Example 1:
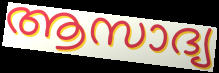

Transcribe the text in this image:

ആസാദ്യ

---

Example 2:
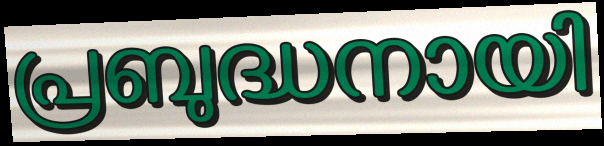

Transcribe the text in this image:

പ്രബുദ്ധനായി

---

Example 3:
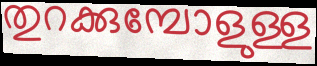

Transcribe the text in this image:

തുറക്കുമ്പോളുള്ള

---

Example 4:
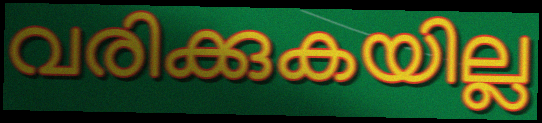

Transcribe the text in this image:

വരിക്കുകയില്ല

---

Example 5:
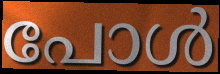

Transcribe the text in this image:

പോൾ